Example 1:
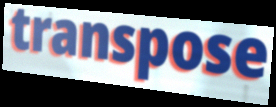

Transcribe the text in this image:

transpose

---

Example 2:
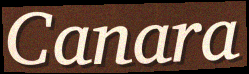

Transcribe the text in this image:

Canara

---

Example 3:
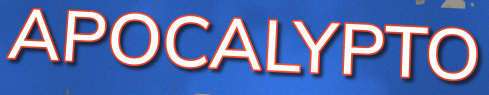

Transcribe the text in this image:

APOCALYPTO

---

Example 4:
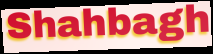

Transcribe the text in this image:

Shahbagh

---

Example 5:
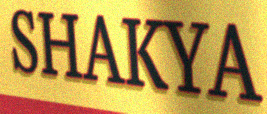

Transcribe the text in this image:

SHAKYA